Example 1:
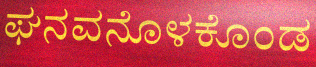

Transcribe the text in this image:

ಘನವನೊಳಕೊಂಡ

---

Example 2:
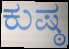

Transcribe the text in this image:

ಕುಷ್ಠ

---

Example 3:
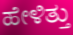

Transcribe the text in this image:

ಹೇಳಿತ್ತು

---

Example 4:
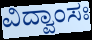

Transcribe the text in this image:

ವಿದ್ವಾಂಸಃ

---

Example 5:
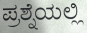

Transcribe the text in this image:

ಪ್ರಶ್ನೆಯಲ್ಲಿ